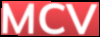
MCV